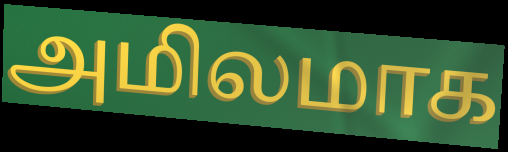
அமிலமாக